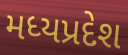
મધ્યપ્રદેશ